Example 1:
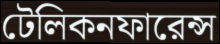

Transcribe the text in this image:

টেলিকনফারেন্স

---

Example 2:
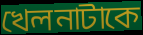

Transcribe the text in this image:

খেলনাটাকে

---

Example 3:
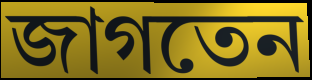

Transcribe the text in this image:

জাগতেন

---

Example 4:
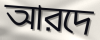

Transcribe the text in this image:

আরদে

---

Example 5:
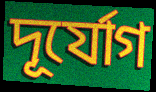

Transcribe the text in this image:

দূর্যোগ